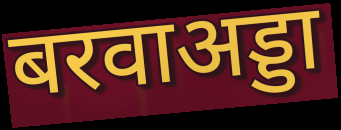
बरवाअड्डा